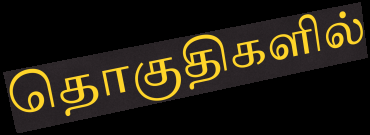
தொகுதிகளில்